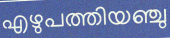
എഴുപത്തിയഞ്ചു